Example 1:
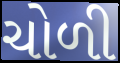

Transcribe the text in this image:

ચોળી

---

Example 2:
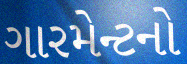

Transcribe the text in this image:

ગારમેન્ટનો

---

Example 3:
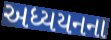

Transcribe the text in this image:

અધ્યયનના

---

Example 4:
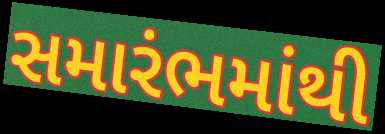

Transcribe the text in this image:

સમારંભમાંથી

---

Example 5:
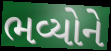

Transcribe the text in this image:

ભવ્યોને